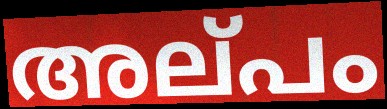
അല്‌പം